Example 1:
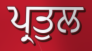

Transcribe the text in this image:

ਪ੍ਰਤੁਲ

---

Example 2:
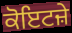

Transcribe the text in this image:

ਕੋਇਟਜ਼ੇ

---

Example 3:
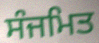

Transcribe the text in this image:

ਸੰਜਮਿਤ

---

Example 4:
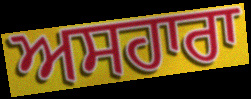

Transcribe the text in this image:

ਅਸਹਾਰਾ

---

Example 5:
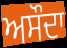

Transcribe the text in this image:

ਅਸੌਦਾ